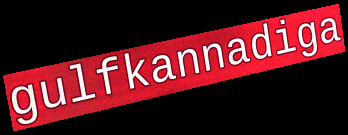
gulfkannadiga